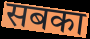
सबका